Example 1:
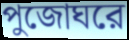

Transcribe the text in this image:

পুজোঘরে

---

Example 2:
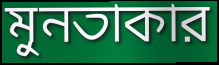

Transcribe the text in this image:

মুনতাকার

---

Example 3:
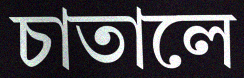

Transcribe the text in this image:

চাতালে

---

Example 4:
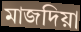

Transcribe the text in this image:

মাজদিয়া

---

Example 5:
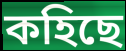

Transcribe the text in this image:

কহিছে